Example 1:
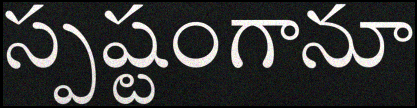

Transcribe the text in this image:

స్పష్టంగానూ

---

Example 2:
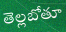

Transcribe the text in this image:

తెల్లబోతూ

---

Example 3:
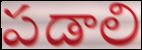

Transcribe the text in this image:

పడాలి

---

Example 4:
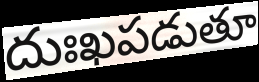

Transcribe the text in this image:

దుఃఖపడుతూ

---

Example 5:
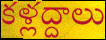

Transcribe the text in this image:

కళ్లద్దాలు